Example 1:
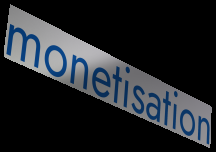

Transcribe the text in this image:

monetisation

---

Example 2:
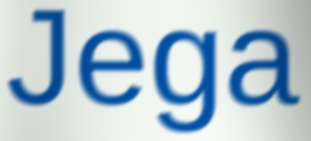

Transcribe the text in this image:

Jega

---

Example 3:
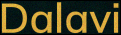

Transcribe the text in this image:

Dalavi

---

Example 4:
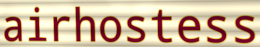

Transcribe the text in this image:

airhostess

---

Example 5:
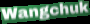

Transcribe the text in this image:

Wangchuk